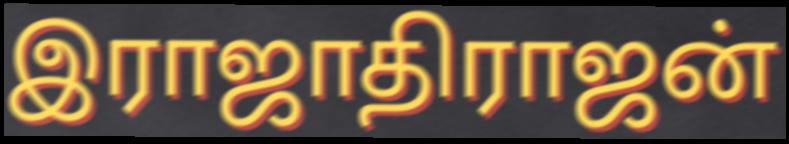
இராஜாதிராஜன்